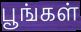
பூங்கள்